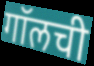
गॉलची